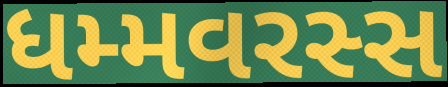
ધમ્મવરસ્સ